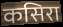
कसिरा